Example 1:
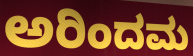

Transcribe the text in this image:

ಅರಿಂದಮ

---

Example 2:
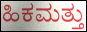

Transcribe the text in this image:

ಹಿಕಮತ್ತು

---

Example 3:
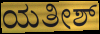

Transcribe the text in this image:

ಯತೀಶ್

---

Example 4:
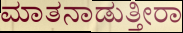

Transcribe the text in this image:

ಮಾತನಾಡುತ್ತೀರಾ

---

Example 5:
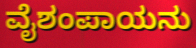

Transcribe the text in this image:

ವೈಶಂಪಾಯನು